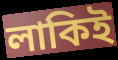
লাকিই